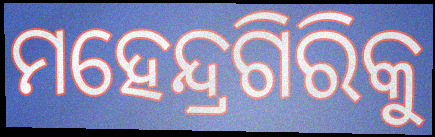
ମହେନ୍ଦ୍ରଗିରିକୁ